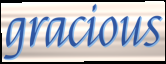
gracious